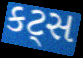
કટ્સ